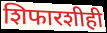
शिफारशीही